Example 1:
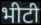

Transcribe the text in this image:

भीटी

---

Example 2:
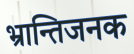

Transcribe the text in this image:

भ्रान्तिजनक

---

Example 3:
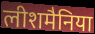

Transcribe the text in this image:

लीशमैनिया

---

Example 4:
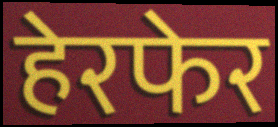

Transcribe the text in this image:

हेरफेर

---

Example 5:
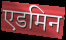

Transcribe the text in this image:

एडमिन